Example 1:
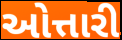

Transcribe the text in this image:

ઓત્તારી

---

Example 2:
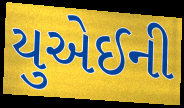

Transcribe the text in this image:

યુએઈની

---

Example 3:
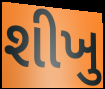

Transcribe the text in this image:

શીખુ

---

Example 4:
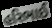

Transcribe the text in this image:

હરિભાઈ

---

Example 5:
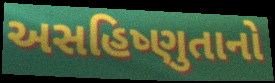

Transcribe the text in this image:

અસહિષ્ણુતાનો